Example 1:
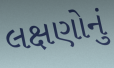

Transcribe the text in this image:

લક્ષણોનું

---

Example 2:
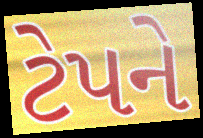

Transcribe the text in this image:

ટેપને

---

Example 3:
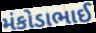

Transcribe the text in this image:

મંકોડાભાઈ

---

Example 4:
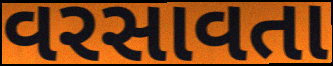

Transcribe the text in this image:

વરસાવતા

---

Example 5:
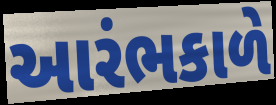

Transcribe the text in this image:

આરંભકાળે